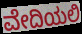
ವೇದಿಯಲಿ